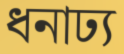
ধনাঢ্য